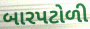
બારપટોળી